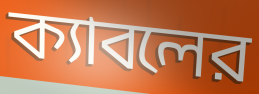
ক্যাবলের